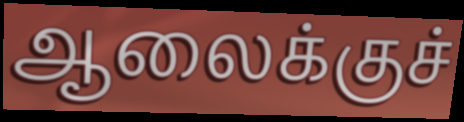
ஆலைக்குச்